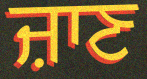
ਜ਼ਾਣ